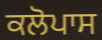
ਕਲੋਪਾਸ